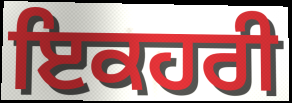
ਇਕਹਰੀ